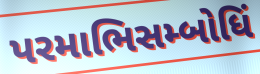
પરમાભિસમ્બોધિં